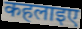
कहलाइए